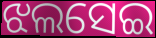
ଝଲସେଇ